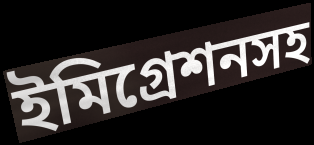
ইমিগ্রেশনসহ